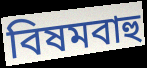
বিষমবাহু